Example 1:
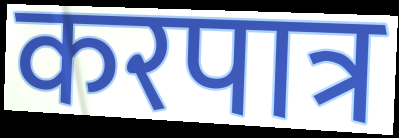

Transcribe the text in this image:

करपात्र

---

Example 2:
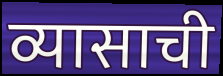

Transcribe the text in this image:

व्यासाची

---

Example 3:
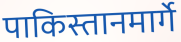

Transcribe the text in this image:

पाकिस्तानमार्गे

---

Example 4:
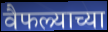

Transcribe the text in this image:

वैफल्याच्या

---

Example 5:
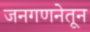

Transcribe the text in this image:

जनगणनेतून